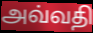
அவ்வதி